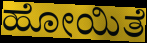
ಹೋಯಿತೆ